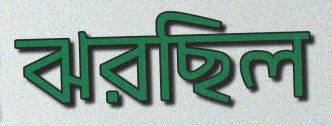
ঝরছিল